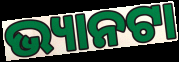
ଭ୍ୟାନଟା